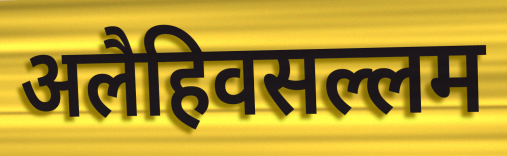
अलैहिवसल्लम